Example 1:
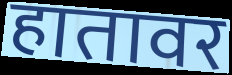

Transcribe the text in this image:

हातावर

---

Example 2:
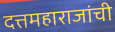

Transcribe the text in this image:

दत्तमहाराजांची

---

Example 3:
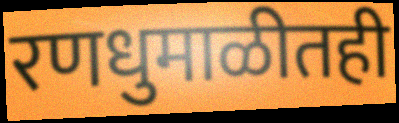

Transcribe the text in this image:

रणधुमाळीतही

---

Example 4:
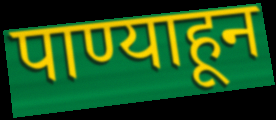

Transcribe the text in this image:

पाण्याहून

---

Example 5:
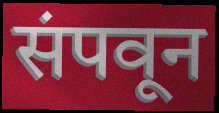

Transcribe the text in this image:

संपवून